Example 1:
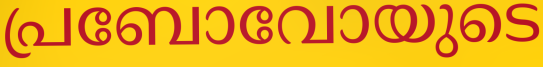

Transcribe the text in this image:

പ്രബോവോയുടെ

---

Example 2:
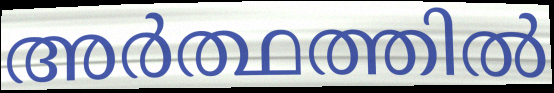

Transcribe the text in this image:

അർത്ഥത്തിൽ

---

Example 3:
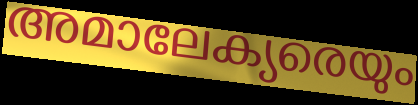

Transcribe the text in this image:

അമാലേക്യരെയും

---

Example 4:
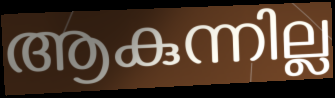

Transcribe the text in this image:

ആകുന്നില്ല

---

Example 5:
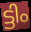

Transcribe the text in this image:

ട്ടിം